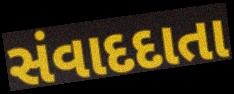
સંવાદદાતા